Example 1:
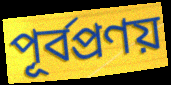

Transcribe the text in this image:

পূর্বপ্রণয়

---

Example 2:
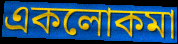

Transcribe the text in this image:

একলোকমা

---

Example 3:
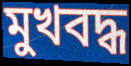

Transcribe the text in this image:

মুখবদ্ধ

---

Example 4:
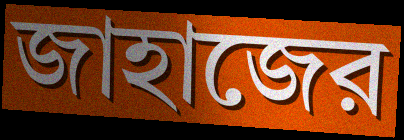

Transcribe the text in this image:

জাহাজের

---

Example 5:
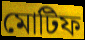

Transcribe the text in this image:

মোটিফ